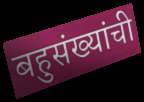
बहुसंख्यांची